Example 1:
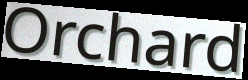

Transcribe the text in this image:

Orchard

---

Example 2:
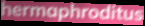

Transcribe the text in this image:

hermaphroditus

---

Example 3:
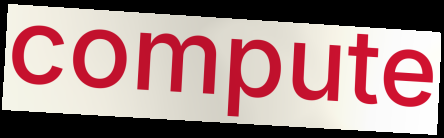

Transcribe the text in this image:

compute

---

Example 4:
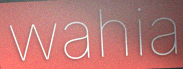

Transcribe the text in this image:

wahia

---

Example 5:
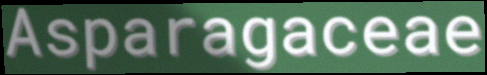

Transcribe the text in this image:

Asparagaceae